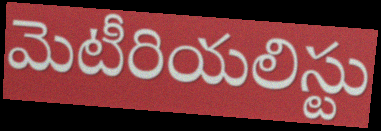
మెటీరియలిస్టు